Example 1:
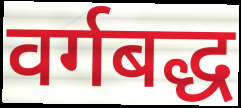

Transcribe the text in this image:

वर्गबद्ध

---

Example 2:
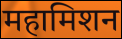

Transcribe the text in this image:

महामिशन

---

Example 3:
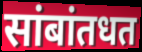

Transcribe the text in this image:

सांबांतधत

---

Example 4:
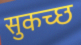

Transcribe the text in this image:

सुकच्छ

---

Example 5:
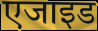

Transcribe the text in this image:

एजाइड